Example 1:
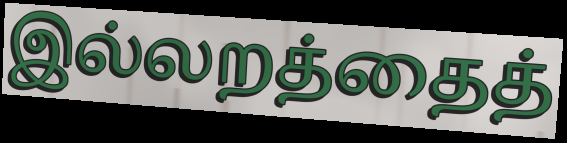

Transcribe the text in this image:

இல்லறத்தைத்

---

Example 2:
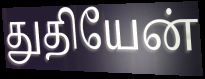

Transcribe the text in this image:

துதியேன்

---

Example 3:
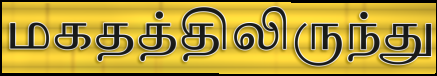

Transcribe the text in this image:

மகதத்திலிருந்து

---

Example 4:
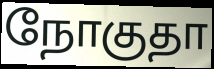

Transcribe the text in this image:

நோகுதா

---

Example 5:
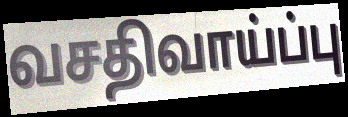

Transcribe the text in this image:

வசதிவாய்ப்பு